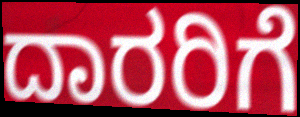
ದಾರರಿಗೆ